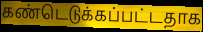
கண்டெடுக்கப்பட்டதாக